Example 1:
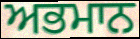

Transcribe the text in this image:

ਅਭਮਾਨ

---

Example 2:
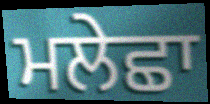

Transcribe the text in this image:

ਮਲੇਛਾ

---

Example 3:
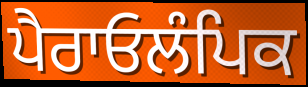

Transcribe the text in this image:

ਪੈਰਾਓਲੰਪਿਕ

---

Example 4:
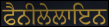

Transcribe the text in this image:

ਫੈਨੀਲੇਲਾਇਨ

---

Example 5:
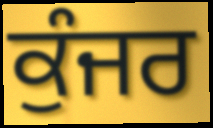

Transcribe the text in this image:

ਕੁੰਜਰ